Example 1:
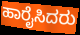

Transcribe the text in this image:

ಹಾರೈಸಿದರು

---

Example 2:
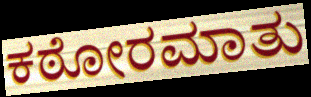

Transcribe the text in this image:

ಕಠೋರಮಾತು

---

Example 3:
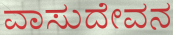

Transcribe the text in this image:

ವಾಸುದೇವನ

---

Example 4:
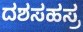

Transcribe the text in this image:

ದಶಸಹಸ್ರ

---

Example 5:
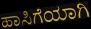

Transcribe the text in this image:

ಹಾಸಿಗೆಯಾಗಿ